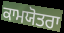
ਕਾਮਯੋਤਰਾ